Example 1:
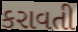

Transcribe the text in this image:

કરાવતી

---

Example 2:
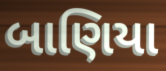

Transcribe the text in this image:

બાણિયા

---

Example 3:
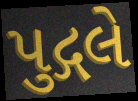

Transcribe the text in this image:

પુદ્ગલે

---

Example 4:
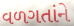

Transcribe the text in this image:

વળગતાંને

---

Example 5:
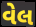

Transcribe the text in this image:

વેલ